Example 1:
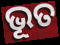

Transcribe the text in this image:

ଭୂତ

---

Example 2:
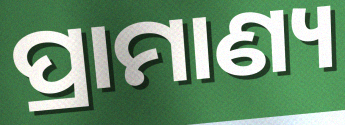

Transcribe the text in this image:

ପ୍ରାମାଣ୍ୟ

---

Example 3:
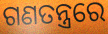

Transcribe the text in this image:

ଗଣତନ୍ତ୍ରରେ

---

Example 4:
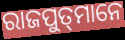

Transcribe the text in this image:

ରାଜପୁତ୍‍ମାନେ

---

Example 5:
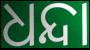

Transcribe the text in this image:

ଧନ୍ଦା